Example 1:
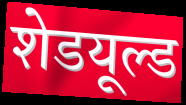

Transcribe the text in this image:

शेडयूल्ड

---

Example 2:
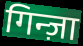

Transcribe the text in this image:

गिन्ज़ा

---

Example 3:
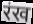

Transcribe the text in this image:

रंख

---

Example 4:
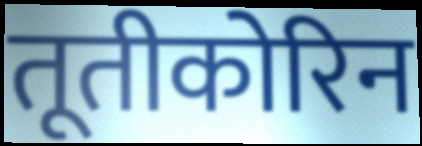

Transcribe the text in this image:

तूतीकोरिन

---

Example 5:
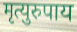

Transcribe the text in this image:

मृत्युरुपाय